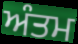
ਅੰਤਮ